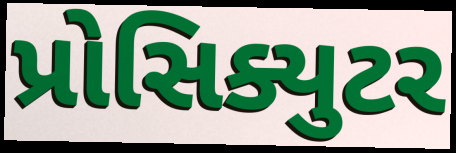
પ્રોસિક્યુટર